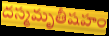
దస్మమృతీషహం